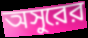
অসুরের